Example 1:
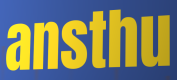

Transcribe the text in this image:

ansthu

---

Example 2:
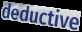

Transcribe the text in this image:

deductive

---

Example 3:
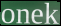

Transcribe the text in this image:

onek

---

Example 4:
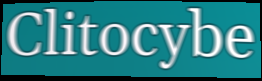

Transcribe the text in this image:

Clitocybe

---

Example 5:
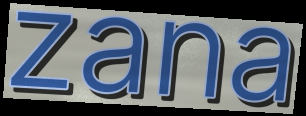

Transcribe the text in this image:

zana